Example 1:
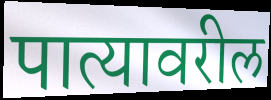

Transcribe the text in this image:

पात्यावरील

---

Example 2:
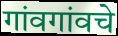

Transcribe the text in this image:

गांवगांवचे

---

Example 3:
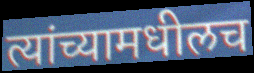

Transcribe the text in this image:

त्यांच्यामधीलच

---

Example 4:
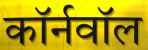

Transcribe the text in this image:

कॉर्नवॉल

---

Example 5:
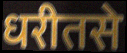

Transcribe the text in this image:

धरीतसे